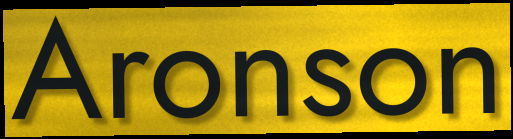
Aronson